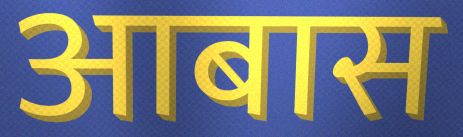
आबास